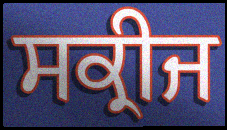
ਸਕ੍ਰੀਜ